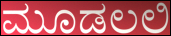
ಮೂಡಲಲಿ